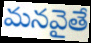
మనవైతే